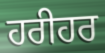
ਹਰੀਹਰ